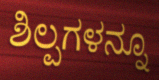
ಶಿಲ್ಪಗಳನ್ನೂ